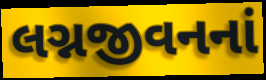
લગ્નજીવનનાં